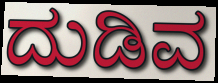
ದುಡಿವ